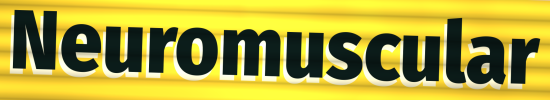
Neuromuscular